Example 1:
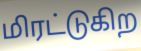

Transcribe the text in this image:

மிரட்டுகிற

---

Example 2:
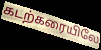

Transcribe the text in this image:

கடற்கரையிலே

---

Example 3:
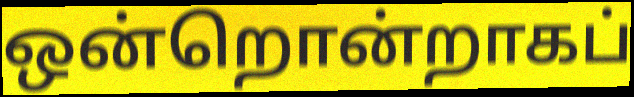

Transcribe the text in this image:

ஒன்றொன்றாகப்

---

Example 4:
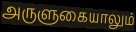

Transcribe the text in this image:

அருளுகையாலும்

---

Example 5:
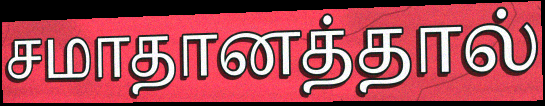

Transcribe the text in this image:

சமாதானத்தால்